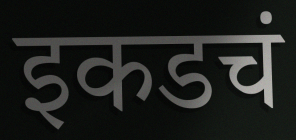
इकडचं